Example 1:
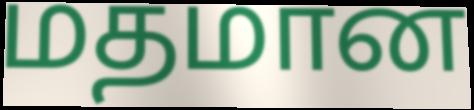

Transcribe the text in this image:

மதமான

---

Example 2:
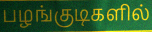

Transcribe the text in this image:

பழங்குடிகளில்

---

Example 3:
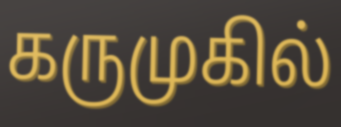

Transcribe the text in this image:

கருமுகில்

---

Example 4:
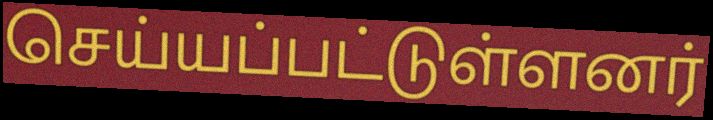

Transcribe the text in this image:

செய்யப்பட்டுள்ளனர்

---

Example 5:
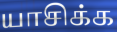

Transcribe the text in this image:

யாசிக்க